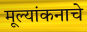
मूल्यांकनाचे